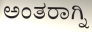
ಅಂತರಾಗ್ನಿ